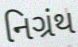
નિગ્રંથ